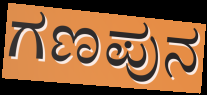
ಗಣಪುನ